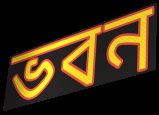
ভবন